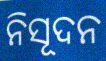
ନିସୂଦନ